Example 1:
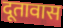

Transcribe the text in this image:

दूतावास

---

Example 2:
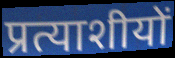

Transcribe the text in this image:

प्रत्याशीयों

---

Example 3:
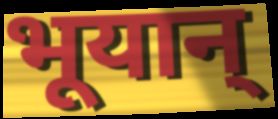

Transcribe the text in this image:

भूयान्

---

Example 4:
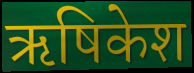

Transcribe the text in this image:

ऋषिकेश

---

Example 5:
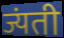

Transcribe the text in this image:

ज्यंती